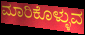
ಮಾರಿಕೊಳ್ಳುವ